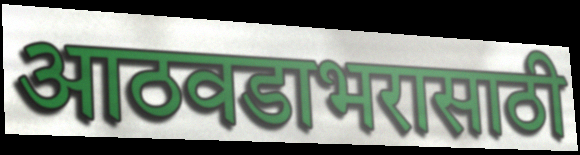
आठवडाभरासाठी